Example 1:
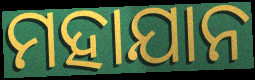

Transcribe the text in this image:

ମହାଯାନ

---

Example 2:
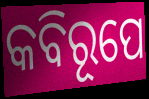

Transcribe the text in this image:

କବିରୂପେ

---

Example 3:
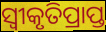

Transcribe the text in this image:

ସ୍ବୀକୃତିପ୍ରାପ୍ତ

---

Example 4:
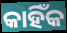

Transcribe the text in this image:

କାହିଁକ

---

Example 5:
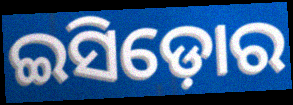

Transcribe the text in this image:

ଇସିଡ଼ୋର